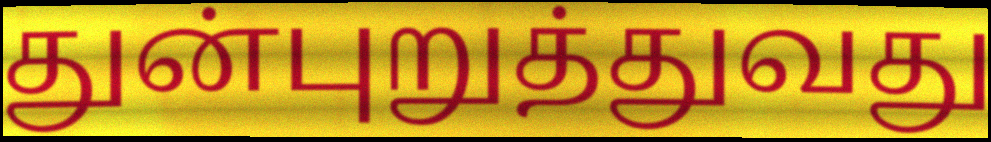
துன்புறுத்துவது